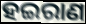
ହଇରାଣ